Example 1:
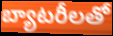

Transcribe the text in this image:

బ్యాటరీలతో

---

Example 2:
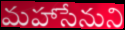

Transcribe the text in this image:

మహాసేనుని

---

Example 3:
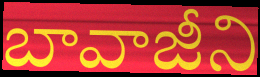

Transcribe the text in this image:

బావాజీని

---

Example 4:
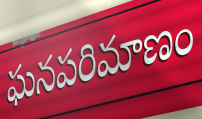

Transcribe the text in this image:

ఘనపరిమాణం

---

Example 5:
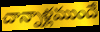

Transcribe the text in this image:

చాన్నాళ్లముందే